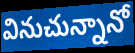
వినుచున్నానో